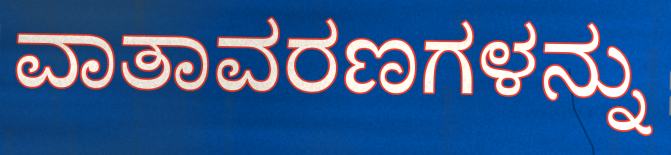
ವಾತಾವರಣಗಳನ್ನು